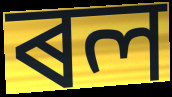
ৰল